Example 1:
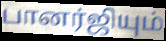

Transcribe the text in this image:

பானர்ஜியும்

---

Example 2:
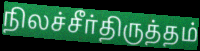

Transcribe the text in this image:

நிலச்சீர்திருத்தம்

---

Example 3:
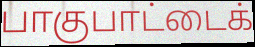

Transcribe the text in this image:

பாகுபாட்டைக்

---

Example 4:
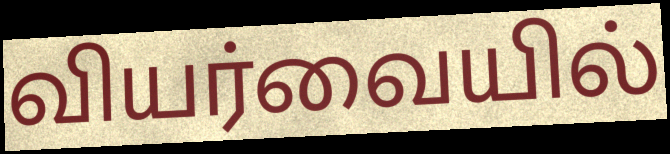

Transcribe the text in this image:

வியர்வையில்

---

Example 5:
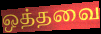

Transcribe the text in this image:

ஒத்தவை